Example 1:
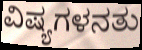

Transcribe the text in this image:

ವಿಷ್ಯಗಳನತು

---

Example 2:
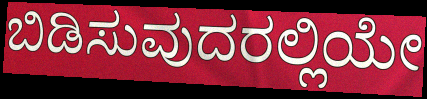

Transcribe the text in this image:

ಬಿಡಿಸುವುದರಲ್ಲಿಯೇ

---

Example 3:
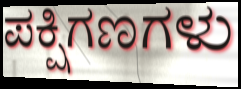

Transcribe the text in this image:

ಪಕ್ಷಿಗಣಗಳು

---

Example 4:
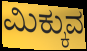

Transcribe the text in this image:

ಮಿಕ್ಕುವ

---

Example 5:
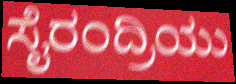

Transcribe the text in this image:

ಸೈರಂದ್ರಿಯು